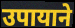
उपायाने